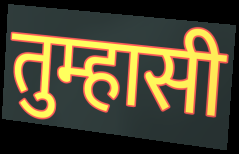
तुम्हासी